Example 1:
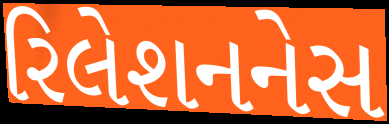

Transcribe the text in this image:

રિલેશનનેસ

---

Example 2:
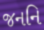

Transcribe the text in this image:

જનનિ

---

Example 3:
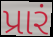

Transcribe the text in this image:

પ્રારં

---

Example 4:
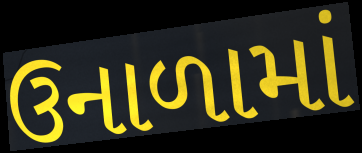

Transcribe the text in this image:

ઉનાળામાં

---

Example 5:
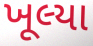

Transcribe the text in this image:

ખૂલ્યા